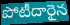
పోటీదారైన